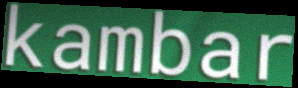
kambar